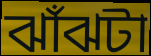
ঝাঁঝটা